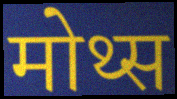
मोथ्स